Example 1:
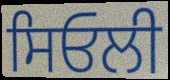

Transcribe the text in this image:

ਸਿਓਲੀ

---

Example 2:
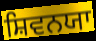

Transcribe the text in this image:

ਸ਼ਿਵਨਯਾ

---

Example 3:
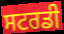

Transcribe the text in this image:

ਸਟਰਡੀ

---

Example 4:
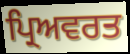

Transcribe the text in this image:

ਪ੍ਰਿਅਵਰਤ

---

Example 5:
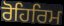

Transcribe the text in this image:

ਰੋਹਿਰਿਮ